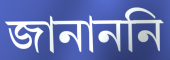
জানাননি